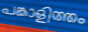
പങ്കാളിത്തം